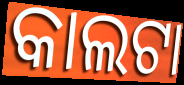
କାଲଟା